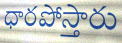
ధారపోస్తారు